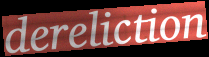
dereliction